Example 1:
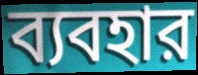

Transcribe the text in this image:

ব্যবহার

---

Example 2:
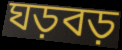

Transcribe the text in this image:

ঘড়বড়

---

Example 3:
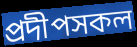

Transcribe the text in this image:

প্রদীপসকল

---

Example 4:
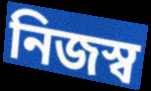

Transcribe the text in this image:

নিজস্ব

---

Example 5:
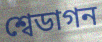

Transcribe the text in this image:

শ্বেডাগন